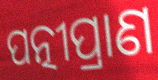
ପତ୍ନୀପ୍ରାଣ